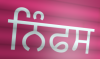
ਨਿੰਫਸ